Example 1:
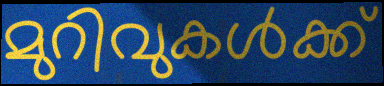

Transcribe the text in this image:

മുറിവുകൾക്ക്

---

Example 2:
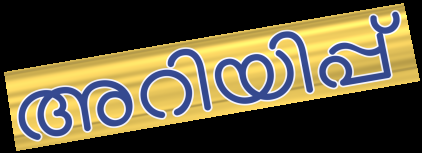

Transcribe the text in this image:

അറിയിപ്പ്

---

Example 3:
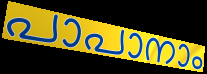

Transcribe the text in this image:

പാപാനാം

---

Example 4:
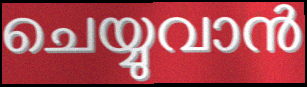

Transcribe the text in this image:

ചെയ്യുവാൻ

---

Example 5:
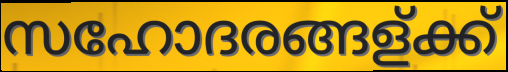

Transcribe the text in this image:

സഹോദരങ്ങള്ക്ക്